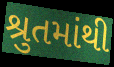
શ્રુતમાંથી